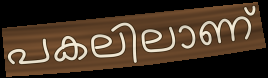
പകലിലാണ്